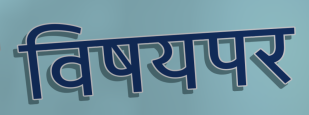
विषयपर